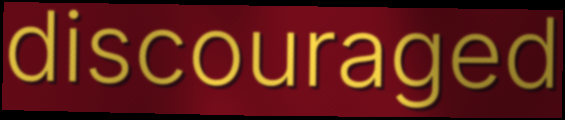
discouraged